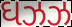
ઘઝઝ